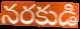
నరకుడి